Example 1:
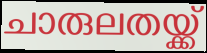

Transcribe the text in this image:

ചാരുലതയ്ക്ക്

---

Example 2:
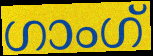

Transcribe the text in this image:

ഗാംഗ്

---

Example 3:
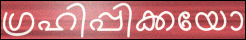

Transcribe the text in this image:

ഗ്രഹിപ്പിക്കയോ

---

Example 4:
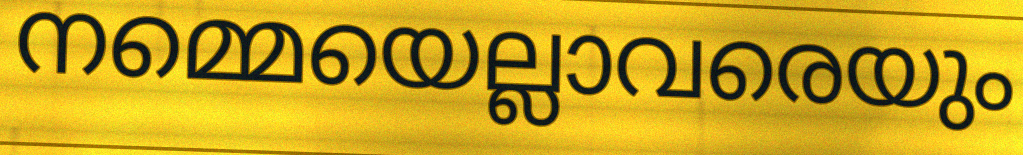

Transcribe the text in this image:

നമ്മെയെല്ലാവരെയും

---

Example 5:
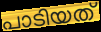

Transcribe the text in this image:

പാടിയത്